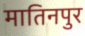
मातिनपुर